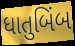
ધાતુબિંબ